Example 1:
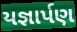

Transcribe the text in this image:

યજ્ઞાર્પણ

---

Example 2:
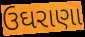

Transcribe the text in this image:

ઉઘરાણા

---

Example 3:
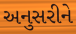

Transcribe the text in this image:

અનુસરીને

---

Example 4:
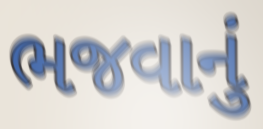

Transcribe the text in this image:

ભજવાનું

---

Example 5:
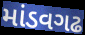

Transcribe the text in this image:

માંડવગઢ